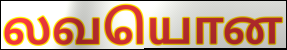
லவயொன